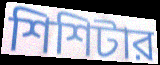
শিশিটার